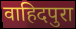
वाहिदपुरा